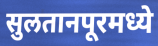
सुलतानपूरमध्ये